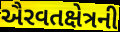
ઐરવતક્ષેત્રની